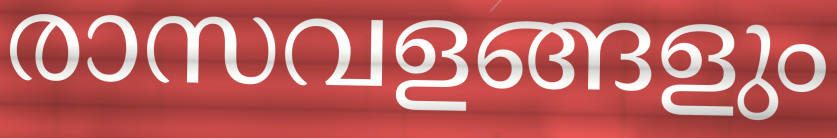
രാസവളങ്ങളും